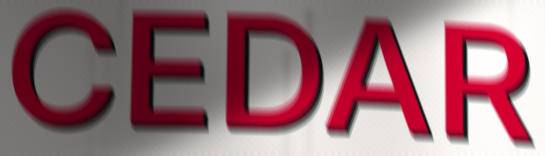
CEDAR